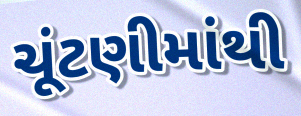
ચૂંટણીમાંથી